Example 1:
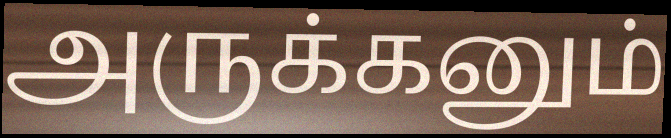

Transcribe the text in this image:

அருக்கனும்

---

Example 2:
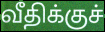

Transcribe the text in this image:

வீதிக்குச்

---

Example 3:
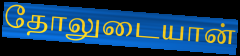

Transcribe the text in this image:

தோலுடையான்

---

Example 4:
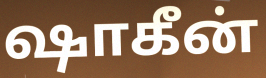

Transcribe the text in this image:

ஷாகீன்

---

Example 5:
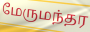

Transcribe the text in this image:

மேருமந்தர